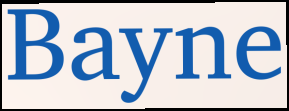
Bayne